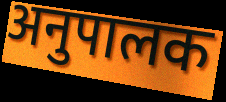
अनुपालक